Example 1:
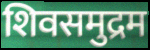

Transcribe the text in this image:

शिवसमुद्रम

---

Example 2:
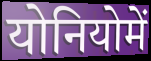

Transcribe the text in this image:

योनियोमें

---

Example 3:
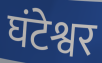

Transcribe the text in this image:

घंटेश्वर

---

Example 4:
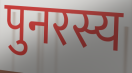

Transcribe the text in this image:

पुनरस्य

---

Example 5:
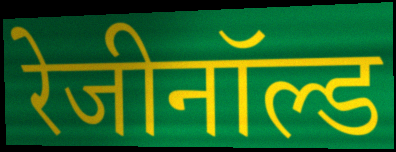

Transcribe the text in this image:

रेजीनॉल्ड